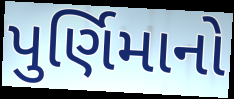
પુર્ણિમાનો